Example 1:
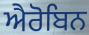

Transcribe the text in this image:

ਐਰੋਬਿਨ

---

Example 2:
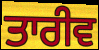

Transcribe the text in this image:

ਤਾਰੀਵ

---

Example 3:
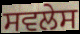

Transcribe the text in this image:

ਸਵਲੇਸ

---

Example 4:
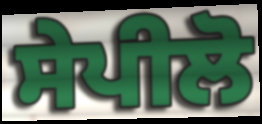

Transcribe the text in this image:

ਸੇਪੀਲੋ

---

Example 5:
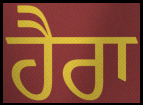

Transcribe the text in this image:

ਹੈਰਾ